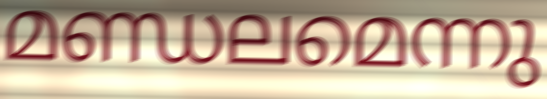
മണ്ഡലമെന്നു